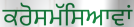
ਕਰੋਸਮੱਸਿਆਵਾਂ